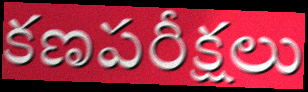
కణపరీక్షలు